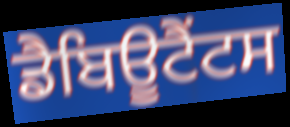
ਡੈਬਿਊਟੈਂਟਸ